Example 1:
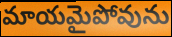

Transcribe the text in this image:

మాయమైపోవును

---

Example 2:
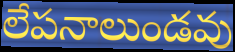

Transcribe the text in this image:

లేపనాలుండవు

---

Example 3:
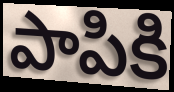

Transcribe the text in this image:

పాపికి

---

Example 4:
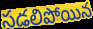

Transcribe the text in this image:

సడలిపోయిన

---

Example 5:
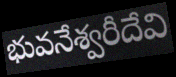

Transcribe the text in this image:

భువనేశ్వరీదేవి